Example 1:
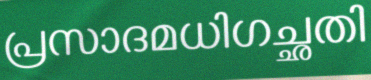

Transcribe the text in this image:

പ്രസാദമധിഗച്ഛതി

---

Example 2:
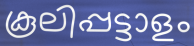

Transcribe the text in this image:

കൂലിപ്പട്ടാളം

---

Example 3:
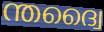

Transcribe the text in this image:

ന്തദ്വൈ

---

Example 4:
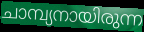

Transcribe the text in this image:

ചാമ്പ്യനായിരുന്ന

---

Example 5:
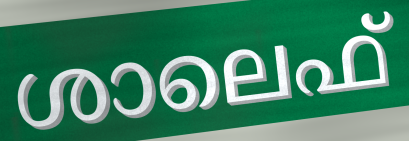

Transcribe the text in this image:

ശാലെഫ്